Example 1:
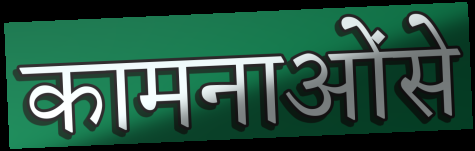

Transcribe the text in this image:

कामनाओंसे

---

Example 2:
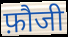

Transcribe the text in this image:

फ़ौजी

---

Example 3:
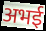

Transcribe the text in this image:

अभई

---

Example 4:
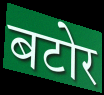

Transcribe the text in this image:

बटोर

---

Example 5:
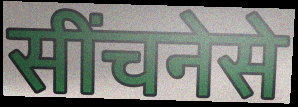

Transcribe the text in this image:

सींचनेसे